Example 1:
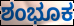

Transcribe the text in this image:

ಶಂಭೂಕ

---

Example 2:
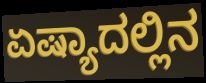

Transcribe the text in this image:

ಏಷ್ಯಾದಲ್ಲಿನ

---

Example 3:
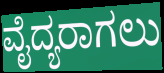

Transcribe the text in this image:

ವೈದ್ಯರಾಗಲು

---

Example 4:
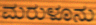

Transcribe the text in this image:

ಮರುಳೂನು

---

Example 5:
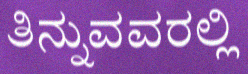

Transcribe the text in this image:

ತಿನ್ನುವವರಲ್ಲಿ